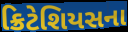
ક્રિટેશિયસના